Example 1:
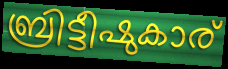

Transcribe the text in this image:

ബ്രിട്ടീഷുകാര്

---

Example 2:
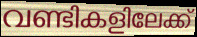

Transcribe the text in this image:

വണ്ടികളിലേക്ക്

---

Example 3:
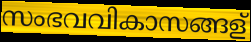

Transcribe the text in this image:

സംഭവവികാസങ്ങള്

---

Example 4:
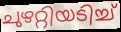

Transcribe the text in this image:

ചുഴറ്റിയടിച്ച്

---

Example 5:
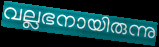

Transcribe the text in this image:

വല്ലഭനായിരുന്നു